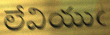
లేవియుఁ